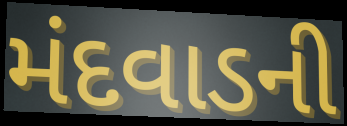
મંદવાડની